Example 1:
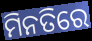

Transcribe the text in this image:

ମିନତିରେ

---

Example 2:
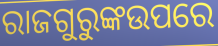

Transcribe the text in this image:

ରାଜଗୁରୁଙ୍କଉପରେ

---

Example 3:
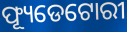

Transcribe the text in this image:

ଫ୍ୟୂଡେଟୋରୀ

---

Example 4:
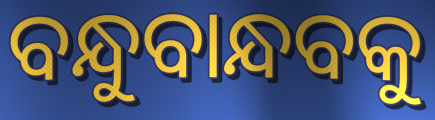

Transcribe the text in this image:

ବନ୍ଧୁବାନ୍ଧବକୁ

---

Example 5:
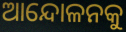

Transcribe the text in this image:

ଆନ୍ଦୋଳନକୁ